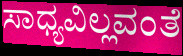
ಸಾಧ್ಯವಿಲ್ಲವಂತೆ